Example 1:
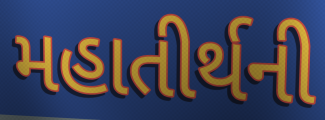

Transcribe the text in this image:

મહાતીર્થની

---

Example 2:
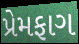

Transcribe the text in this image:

પ્રેમફાગ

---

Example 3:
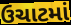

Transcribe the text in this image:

ઉચાટમાં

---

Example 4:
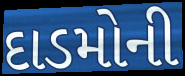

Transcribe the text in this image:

દાડમોની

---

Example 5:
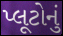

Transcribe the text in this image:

પ્લૂટોનું